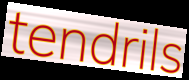
tendrils